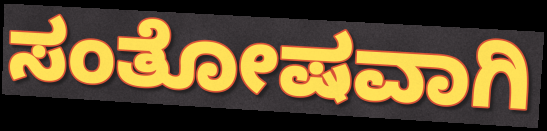
ಸಂತೋಷವಾಗಿ